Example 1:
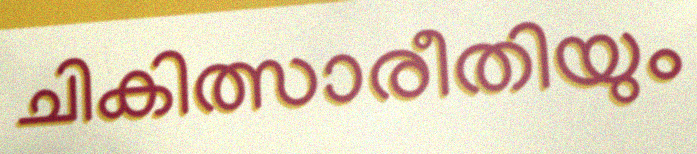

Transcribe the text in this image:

ചികിത്സാരീതിയും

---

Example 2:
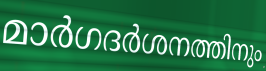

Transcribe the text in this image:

മാർഗദർശനത്തിനും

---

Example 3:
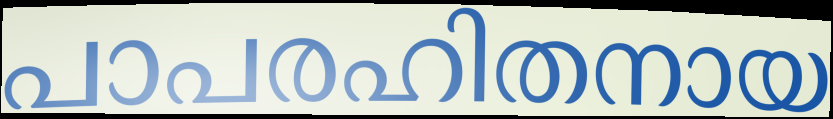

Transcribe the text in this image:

പാപരഹിതനായ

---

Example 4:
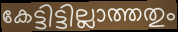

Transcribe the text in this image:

കേട്ടിട്ടില്ലാത്തതും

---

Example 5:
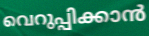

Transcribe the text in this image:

വെറുപ്പിക്കാൻ